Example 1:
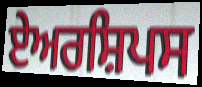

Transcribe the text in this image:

ਏਅਰਸ਼ਿਪਸ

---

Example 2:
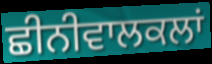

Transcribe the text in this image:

ਛੀਨੀਵਾਲਕਲਾਂ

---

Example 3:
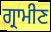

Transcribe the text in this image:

ਗ੍ਰਾਮੀਣ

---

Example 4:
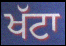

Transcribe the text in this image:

ਖੱਟਾ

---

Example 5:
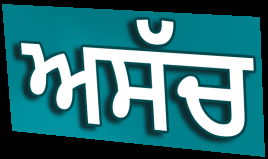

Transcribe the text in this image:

ਅਸੱਚ